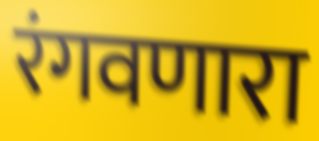
रंगवणारा